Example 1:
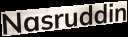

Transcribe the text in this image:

Nasruddin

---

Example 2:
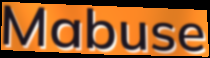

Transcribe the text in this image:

Mabuse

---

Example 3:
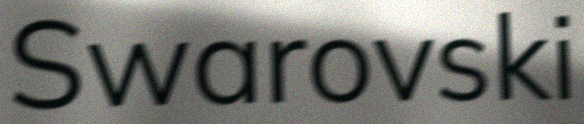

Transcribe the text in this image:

Swarovski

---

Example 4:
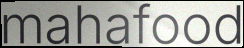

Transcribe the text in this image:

mahafood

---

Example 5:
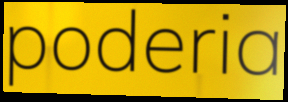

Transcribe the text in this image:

poderia